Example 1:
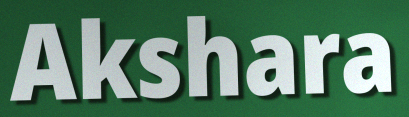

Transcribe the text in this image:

Akshara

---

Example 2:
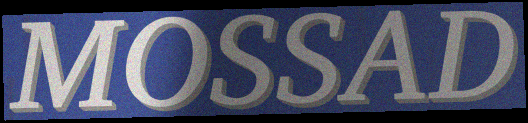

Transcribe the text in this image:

MOSSAD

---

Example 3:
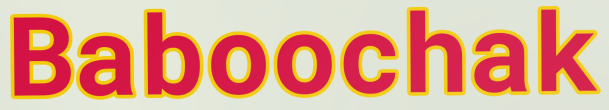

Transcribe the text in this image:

Baboochak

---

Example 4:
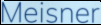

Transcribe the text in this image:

Meisner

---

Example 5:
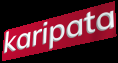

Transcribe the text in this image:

karipata